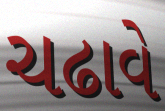
ચઢાવે